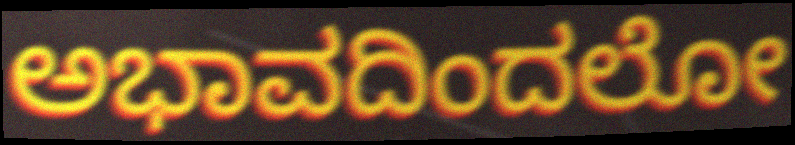
ಅಭಾವದಿಂದಲೋ